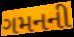
ગમનની